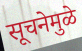
सूचनेमुळे